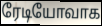
ரேடியோவாக